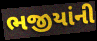
ભજીયાંની